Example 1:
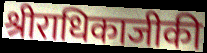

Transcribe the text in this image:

श्रीराधिकाजीकी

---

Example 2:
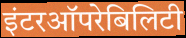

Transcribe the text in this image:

इंटरऑपरेबिलिटी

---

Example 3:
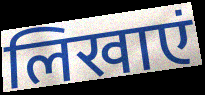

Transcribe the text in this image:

लिखाएं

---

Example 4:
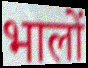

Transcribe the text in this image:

भालों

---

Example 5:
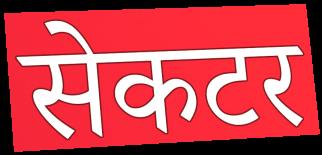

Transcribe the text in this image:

सेकटर